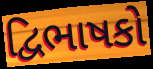
દ્વિભાષકો